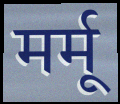
मर्मू